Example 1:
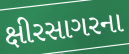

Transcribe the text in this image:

ક્ષીરસાગરના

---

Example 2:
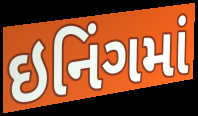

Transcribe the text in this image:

ઇનિંગમાં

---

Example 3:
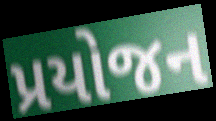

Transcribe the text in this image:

પ્રયોજન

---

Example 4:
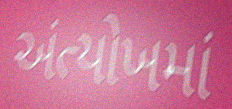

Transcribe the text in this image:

અંત્યોખમાં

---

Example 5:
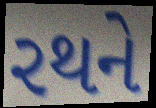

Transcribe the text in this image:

રથને